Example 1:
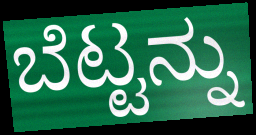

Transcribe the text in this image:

ಬೆಟ್ಟನ್ನು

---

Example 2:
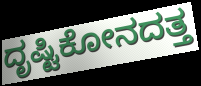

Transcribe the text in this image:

ದೃಷ್ಟಿಕೋನದತ್ತ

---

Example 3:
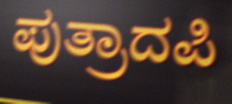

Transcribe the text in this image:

ಪುತ್ರಾದಪಿ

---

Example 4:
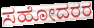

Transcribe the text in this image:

ಸಹೋದರರ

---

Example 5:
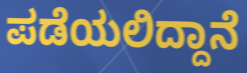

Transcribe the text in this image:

ಪಡೆಯಲಿದ್ದಾನೆ